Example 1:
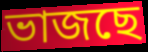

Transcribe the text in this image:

ভাজছে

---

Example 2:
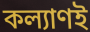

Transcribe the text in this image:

কল্যাণই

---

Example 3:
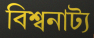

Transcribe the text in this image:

বিশ্বনাট্য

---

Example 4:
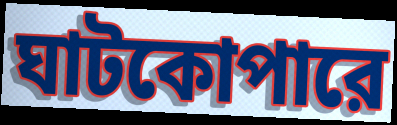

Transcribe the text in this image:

ঘাটকোপারে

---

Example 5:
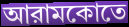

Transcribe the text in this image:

আরামকোতে